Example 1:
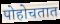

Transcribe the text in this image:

पोहोचतात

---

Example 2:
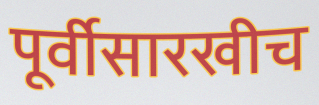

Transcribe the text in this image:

पूर्वीसारखीच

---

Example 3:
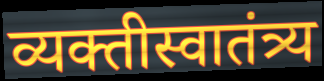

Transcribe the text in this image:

व्यक्तीस्वातंत्र्य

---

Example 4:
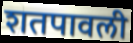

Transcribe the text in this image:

शतपावली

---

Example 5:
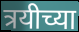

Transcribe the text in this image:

त्रयीच्या